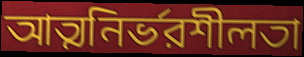
আত্মনির্ভরশীলতা